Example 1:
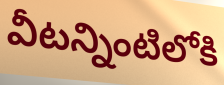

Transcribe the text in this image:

వీటన్నింటిలోకి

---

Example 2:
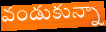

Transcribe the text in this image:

వండుకున్నా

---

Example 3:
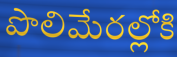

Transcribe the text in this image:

పొలిమేరల్లోకి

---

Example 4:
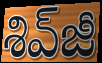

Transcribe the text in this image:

శివ్‌జీ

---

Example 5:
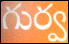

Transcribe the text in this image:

గుర్వ